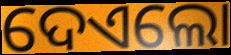
ଦେଏଲୋ